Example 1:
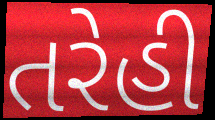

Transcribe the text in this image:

તરેહી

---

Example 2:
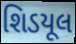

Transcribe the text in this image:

શિડયૂલ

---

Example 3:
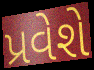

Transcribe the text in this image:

પ્રવેશે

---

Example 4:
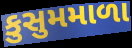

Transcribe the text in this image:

કુસુમમાળા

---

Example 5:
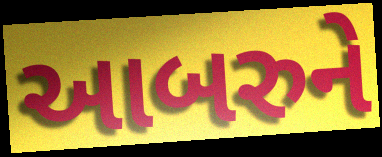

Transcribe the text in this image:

આબરુને